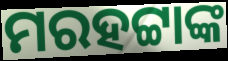
ମରହଟ୍ଟାଙ୍କ